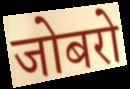
जोबरो